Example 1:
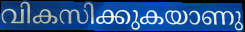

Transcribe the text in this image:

വികസിക്കുകയാണു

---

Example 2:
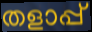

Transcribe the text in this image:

തളാപ്പ്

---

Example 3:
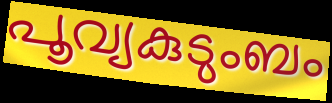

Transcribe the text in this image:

പൂവ്യകുടുംബം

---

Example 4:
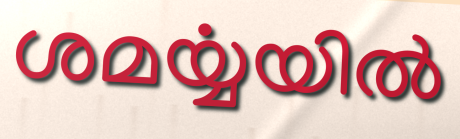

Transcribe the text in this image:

ശമൎയ്യയിൽ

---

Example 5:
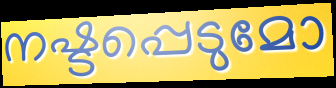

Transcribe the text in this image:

നഷ്ടപ്പെടുമോ